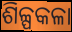
ଶିଳ୍ପକଳା